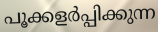
പൂക്കളർപ്പിക്കുന്ന